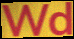
Wd